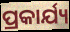
ପ୍ରକାର୍ଯ୍ୟ